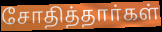
சோதித்தார்கள்